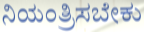
ನಿಯಂತ್ರಿಸಬೇಕು